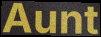
Aunt